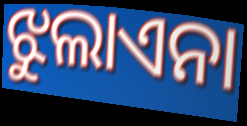
ଝୁଲାଏନା